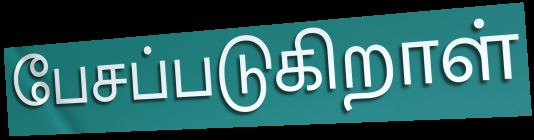
பேசப்படுகிறாள்